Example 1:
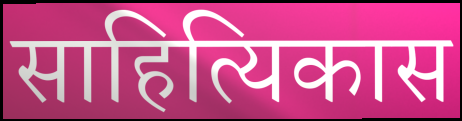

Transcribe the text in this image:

साहित्यिकास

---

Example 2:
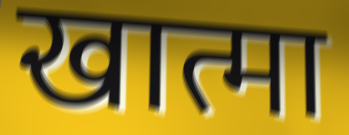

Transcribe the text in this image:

खात्मा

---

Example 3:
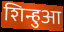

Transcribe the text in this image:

शिन्हुआ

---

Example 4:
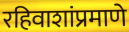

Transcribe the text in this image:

रहिवाशांप्रमाणे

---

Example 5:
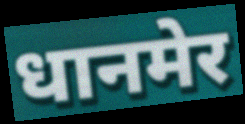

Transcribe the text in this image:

धानमेर